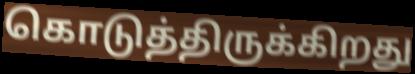
கொடுத்திருக்கிறது